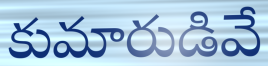
కుమారుడివే